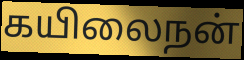
கயிலைநன்